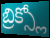
బ్రిక్స్లో